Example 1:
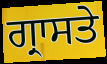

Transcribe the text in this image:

ਗ੍ਰਾਸਤੇ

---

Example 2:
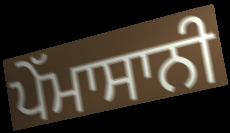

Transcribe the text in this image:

ਪੇੱਮਾਸਾਨੀ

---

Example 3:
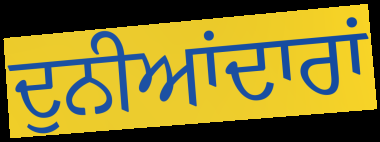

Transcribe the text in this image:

ਦੁਨੀਆਂਦਾਰਾਂ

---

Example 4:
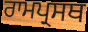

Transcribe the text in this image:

ਰਾਮਪ੍ਰਸਥ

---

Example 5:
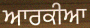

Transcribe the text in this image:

ਆਰਕੀਆ